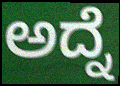
ಅದ್ನೆ